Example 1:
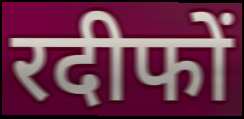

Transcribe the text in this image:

रदीफों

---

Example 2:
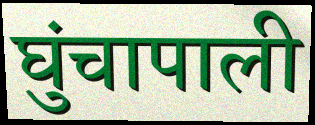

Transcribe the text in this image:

घुंचापाली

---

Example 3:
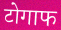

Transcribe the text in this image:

टोगाफ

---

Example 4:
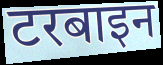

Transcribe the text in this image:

टरबाइन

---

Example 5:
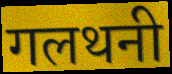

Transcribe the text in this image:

गलथनी